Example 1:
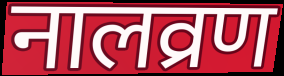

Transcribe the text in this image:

नालव्रण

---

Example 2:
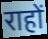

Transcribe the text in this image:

राहों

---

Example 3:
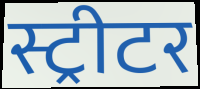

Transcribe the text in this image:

स्ट्रीटर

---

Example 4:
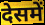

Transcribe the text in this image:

देसमें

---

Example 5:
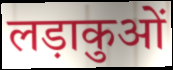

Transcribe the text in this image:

लड़ाकुओं